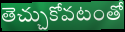
తెచ్చుకోవటంతో